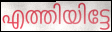
എത്തിയിട്ടേ